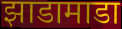
झाडामाडा